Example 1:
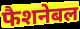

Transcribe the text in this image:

फैशनेबल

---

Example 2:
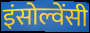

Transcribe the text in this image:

इंसोल्वेंसी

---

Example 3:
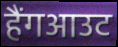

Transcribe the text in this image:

हैंगआउट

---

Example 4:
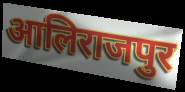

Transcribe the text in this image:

आलिराजपुर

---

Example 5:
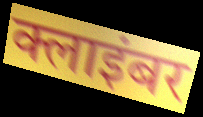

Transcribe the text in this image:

क्लाइंबर